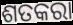
ଶତକରା